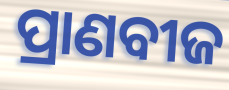
ପ୍ରାଣବୀଜ